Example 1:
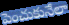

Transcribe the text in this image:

పెంచుకునేలా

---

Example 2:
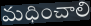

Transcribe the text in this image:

మధించాలి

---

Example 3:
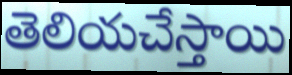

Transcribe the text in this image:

తెలియచేస్తాయి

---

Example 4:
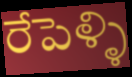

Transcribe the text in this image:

రేపెళ్ళి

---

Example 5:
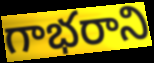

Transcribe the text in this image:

గాభరాని